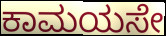
ಕಾಮಯಸೇ